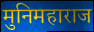
मुनिमहाराज